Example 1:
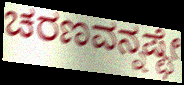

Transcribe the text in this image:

ಚರಣವನ್ನಷ್ಟೇ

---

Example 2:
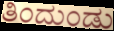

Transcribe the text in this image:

ತಿಂದುಂಡು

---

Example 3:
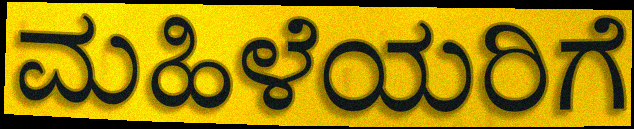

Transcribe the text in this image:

ಮಹಿಳೆಯರಿಗೆ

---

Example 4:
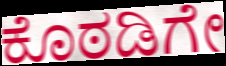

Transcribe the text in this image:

ಕೊಠಡಿಗೇ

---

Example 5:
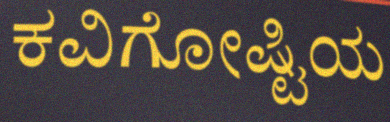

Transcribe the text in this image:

ಕವಿಗೋಷ್ಟಿಯ